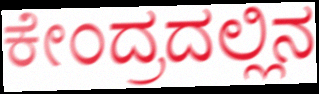
ಕೇಂದ್ರದಲ್ಲಿನ